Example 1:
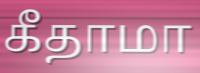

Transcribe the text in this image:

கீதாமா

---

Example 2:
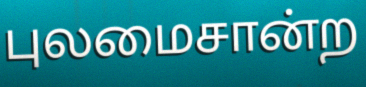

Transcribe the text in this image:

புலமைசான்ற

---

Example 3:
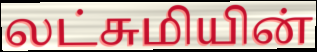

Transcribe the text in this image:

லட்சுமியின்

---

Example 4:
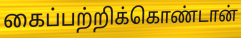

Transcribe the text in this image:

கைப்பற்றிக்கொண்டான்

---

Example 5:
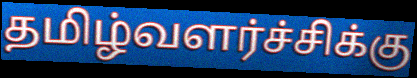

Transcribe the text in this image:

தமிழ்வளர்ச்சிக்கு